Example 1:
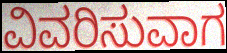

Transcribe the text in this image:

ವಿವರಿಸುವಾಗ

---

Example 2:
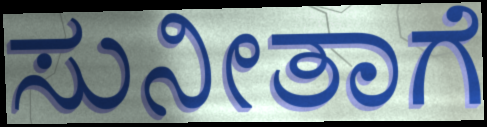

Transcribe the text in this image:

ಸುನೀತಾಗೆ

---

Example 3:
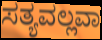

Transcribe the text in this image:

ಸತ್ಯವಲ್ಲವಾ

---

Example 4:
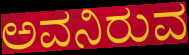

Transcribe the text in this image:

ಅವನಿರುವ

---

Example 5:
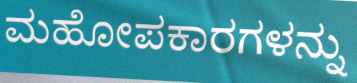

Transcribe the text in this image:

ಮಹೋಪಕಾರಗಳನ್ನು